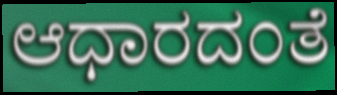
ಆಧಾರದಂತೆ